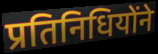
प्रतिनिधियोंने